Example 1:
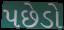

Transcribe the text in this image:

પછેડો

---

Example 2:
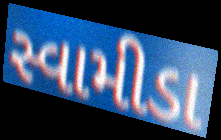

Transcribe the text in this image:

સ્વામીડા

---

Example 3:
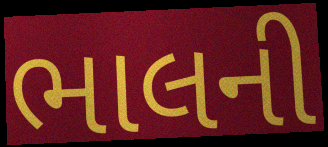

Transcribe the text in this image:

ભાલની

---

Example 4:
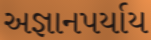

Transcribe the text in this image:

અજ્ઞાનપર્યાય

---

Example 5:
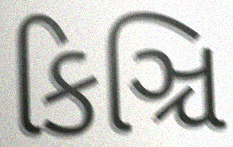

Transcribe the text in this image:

કિઞ્ચિ